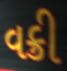
વક્રી